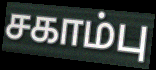
சகாம்பு